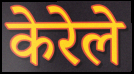
केरेले